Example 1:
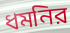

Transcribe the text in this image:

ধমনির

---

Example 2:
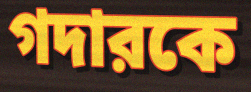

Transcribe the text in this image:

গদারকে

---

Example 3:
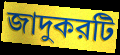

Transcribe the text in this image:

জাদুকরটি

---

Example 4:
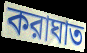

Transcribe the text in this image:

করাঘাত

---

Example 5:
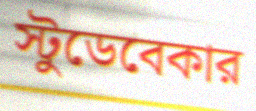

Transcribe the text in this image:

স্টুডেবেকার